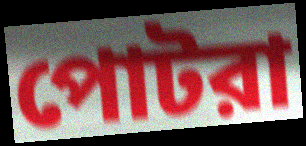
পোটরা